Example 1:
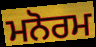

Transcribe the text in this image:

ਮਨੋਰਮ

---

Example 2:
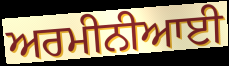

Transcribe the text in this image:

ਅਰਮੀਨੀਆਈ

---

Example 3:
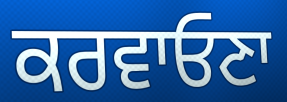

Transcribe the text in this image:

ਕਰਵਾਓਣਾ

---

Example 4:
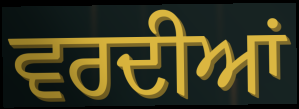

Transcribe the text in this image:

ਵਰਦੀਆਂ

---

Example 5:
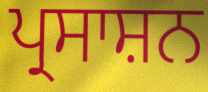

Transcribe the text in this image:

ਪ੍ਰਸਾਸ਼ਨ